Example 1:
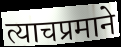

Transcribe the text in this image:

त्याचप्रमाने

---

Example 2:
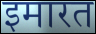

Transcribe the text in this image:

इमारत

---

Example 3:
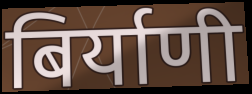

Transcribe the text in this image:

बिर्याणी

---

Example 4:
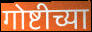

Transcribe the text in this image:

गोष्टीच्या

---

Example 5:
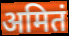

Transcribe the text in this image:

अमितं